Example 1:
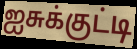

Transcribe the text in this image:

ஐசுக்குட்டி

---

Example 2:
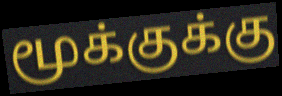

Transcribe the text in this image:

மூக்குக்கு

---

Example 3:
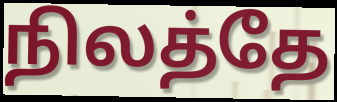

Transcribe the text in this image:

நிலத்தே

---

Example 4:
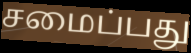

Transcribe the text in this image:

சமைப்பது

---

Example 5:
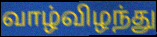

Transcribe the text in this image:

வாழ்விழந்து